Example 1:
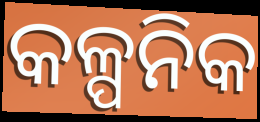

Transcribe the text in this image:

କଳ୍ପନିକ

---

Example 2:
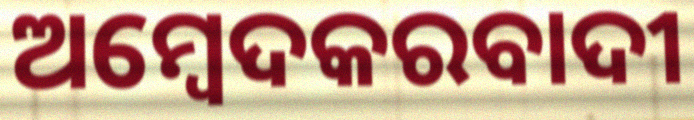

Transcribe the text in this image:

ଅମ୍ବେଦକରବାଦୀ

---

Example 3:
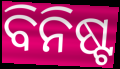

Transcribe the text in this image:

ବିନିଷ୍ଟ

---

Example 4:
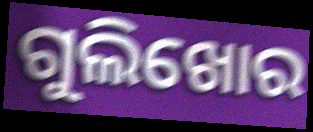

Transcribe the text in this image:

ଗୁଲିଖୋର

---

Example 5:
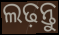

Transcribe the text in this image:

ଲଢ଼ନ୍ତୁ